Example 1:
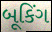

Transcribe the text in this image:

બૂકિંગ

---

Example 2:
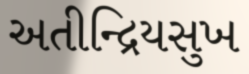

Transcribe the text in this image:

અતીન્દ્રિયસુખ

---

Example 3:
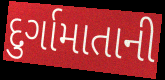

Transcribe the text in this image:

દુર્ગામાતાની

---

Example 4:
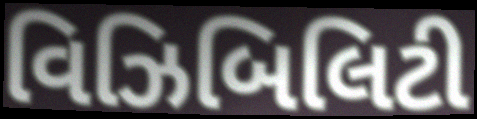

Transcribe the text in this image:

વિઝિબિલિટી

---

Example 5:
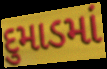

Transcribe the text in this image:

દુમાડમાં